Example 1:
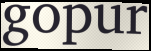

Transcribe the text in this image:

gopur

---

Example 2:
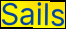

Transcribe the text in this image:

Sails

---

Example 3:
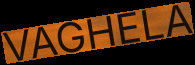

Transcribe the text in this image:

VAGHELA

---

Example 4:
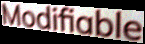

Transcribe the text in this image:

Modifiable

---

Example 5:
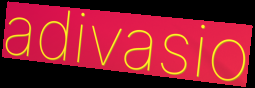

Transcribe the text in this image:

adivasio